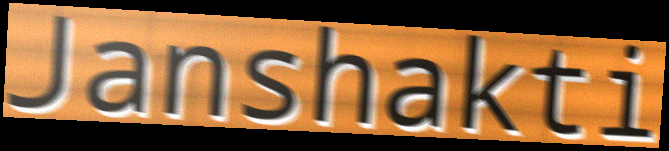
Janshakti